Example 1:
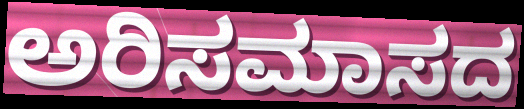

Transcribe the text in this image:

ಅರಿಸಮಾಸದ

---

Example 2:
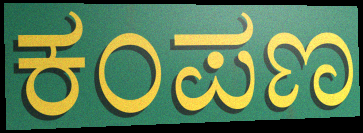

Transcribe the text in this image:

ಕಂಪಣ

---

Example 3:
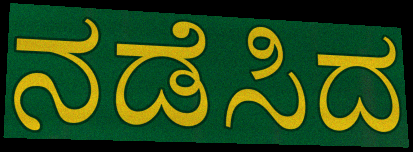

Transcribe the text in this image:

ನಡೆಸಿದ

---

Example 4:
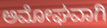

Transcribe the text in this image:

ಅಮೋಘವಾಗಿ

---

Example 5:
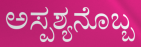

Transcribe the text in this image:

ಅಸ್ಪಶ್ಯನೊಬ್ಬ